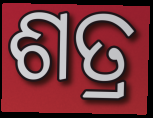
ଶତ୍ର